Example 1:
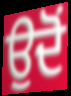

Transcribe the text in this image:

ਉਦੋਂ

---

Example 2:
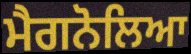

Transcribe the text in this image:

ਮੈਗਨੋਲਿਆ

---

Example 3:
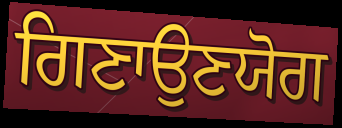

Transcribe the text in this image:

ਗਿਣਾਉਣਯੋਗ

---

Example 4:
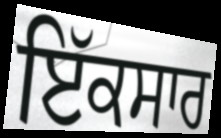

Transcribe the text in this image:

ਇੱਕਸਾਰ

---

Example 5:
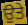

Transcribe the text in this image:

ਉਤੇ